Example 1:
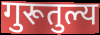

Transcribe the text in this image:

गुरूतुल्य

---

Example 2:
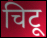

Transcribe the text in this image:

चिटू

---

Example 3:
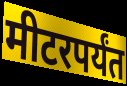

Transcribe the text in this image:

मीटरपर्यंत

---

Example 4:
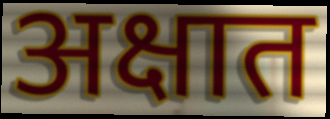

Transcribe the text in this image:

अक्षात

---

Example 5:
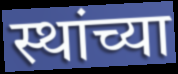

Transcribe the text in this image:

स्थांच्या